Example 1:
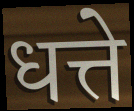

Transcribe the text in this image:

धत्ते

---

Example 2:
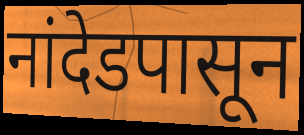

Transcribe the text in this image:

नांदेडपासून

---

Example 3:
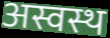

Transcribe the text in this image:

अस्वस्थ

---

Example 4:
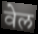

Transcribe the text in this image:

वेल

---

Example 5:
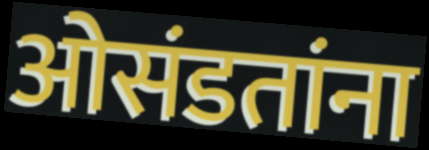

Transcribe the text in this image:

ओसंडतांना